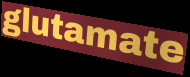
glutamate